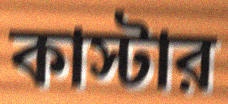
কাস্টার